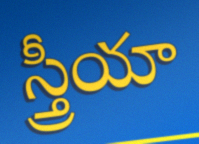
స్త్రీయా